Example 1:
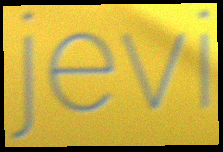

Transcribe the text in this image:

jevi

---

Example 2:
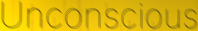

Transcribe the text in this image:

Unconscious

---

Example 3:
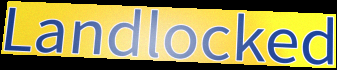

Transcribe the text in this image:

Landlocked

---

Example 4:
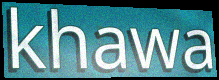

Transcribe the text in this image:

khawa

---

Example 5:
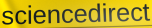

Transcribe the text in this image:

sciencedirect